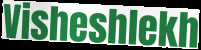
Visheshlekh